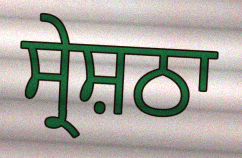
ਸ੍ਰੇਸ਼ਠਾ